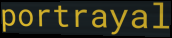
portrayal